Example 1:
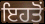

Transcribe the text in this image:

ਇਹਤੋਂ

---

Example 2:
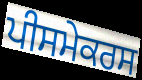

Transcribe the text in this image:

ਪੀਸਮੇਕਰਸ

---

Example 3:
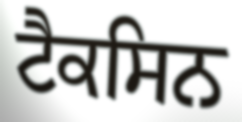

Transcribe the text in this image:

ਟੈਕਸਿਨ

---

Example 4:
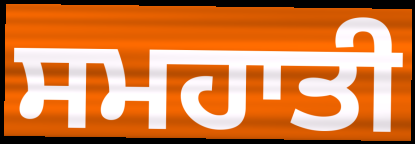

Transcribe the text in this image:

ਸਮਹਾਤੀ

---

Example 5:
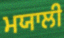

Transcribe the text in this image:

ਮਯਾਲੀ